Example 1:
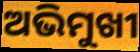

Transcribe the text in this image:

ଅଭିମୁଖୀ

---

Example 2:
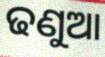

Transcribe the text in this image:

ଢଣୁଆ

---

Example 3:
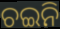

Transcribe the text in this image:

ଚଇନି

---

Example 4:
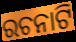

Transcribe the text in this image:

ରଚନାଟି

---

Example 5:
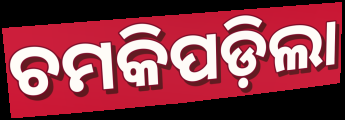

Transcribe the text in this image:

ଚମକିପଡ଼ିଲା